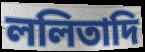
ললিতাদি